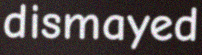
dismayed